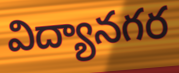
విద్యానగర